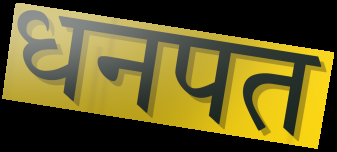
धनपत